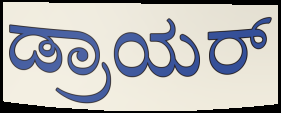
ಡ್ರಾಯರ್